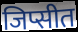
जिप्सीत